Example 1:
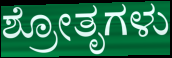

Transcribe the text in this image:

ಶ್ರೋತೃಗಳು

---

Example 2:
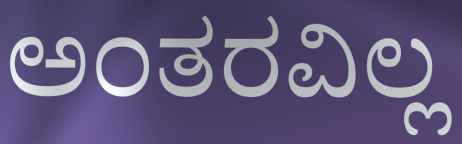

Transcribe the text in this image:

ಅಂತರವಿಲ್ಲ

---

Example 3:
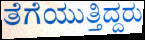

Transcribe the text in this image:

ತೆಗೆಯುತ್ತಿದ್ದರು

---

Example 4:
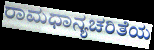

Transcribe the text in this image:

ರಾಮಧಾನ್ಯಚರಿತೆಯ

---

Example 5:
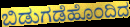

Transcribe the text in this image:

ಬಿಡುಗಡೆಹೊಂದಿದ